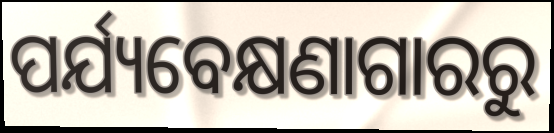
ପର୍ଯ୍ୟବେକ୍ଷଣାଗାରରୁ